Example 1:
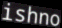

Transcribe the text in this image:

ishno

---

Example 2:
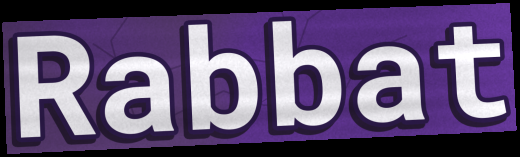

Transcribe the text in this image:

Rabbat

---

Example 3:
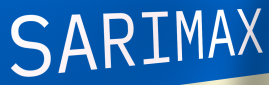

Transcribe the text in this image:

SARIMAX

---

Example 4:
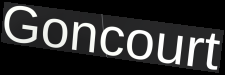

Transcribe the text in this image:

Goncourt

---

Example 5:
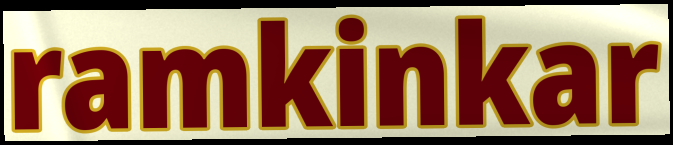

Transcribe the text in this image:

ramkinkar